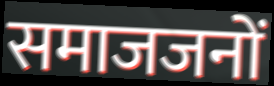
समाजजनों